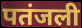
पतंजली